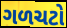
ગળચટો